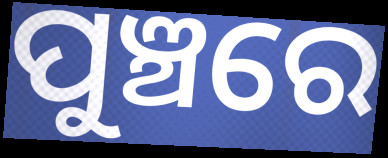
ପୁଞ୍ଚରେ